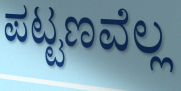
ಪಟ್ಟಣವೆಲ್ಲ